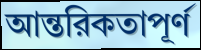
আন্তরিকতাপূর্ণ